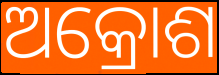
ଅକ୍ରୋଶ